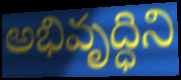
అభివృద్ధిని